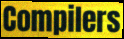
Compilers